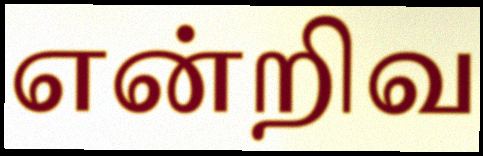
என்றிவ